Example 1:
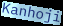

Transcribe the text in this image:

Kanhoji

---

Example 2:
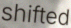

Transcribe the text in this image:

shifted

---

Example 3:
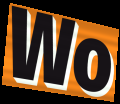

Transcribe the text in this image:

Wo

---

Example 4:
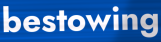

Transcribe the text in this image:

bestowing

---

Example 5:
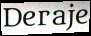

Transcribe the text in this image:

Deraje